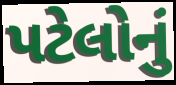
પટેલોનું